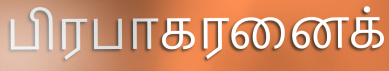
பிரபாகரனைக்